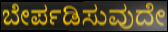
ಬೇರ್ಪಡಿಸುವುದೇ